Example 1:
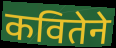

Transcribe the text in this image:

कवितेने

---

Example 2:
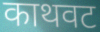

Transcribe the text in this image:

काथवट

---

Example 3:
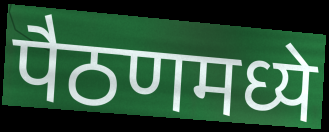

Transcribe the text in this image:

पैठणमध्ये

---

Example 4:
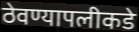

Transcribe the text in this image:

ठेवण्यापलीकडे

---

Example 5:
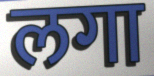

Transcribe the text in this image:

लगा